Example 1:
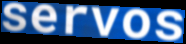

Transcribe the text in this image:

servos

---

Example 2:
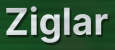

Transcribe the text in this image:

Ziglar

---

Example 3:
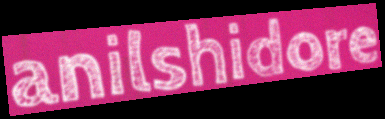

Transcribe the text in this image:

anilshidore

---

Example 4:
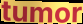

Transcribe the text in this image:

tumor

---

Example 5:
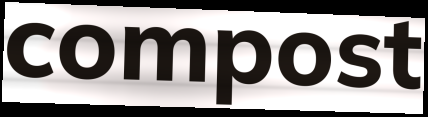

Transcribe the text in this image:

compost